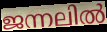
ജന്നലിൽ